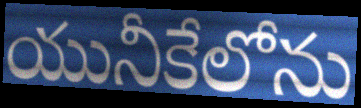
యునీకేలోను